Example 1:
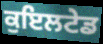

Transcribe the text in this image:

ਕੁਇਲਟੇਡ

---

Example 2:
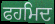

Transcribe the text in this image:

ਫਹਮਿਦ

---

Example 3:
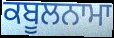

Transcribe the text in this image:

ਕਬੂਲਨਾਮਾ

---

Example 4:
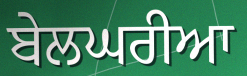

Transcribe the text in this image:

ਬੇਲਘਰੀਆ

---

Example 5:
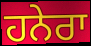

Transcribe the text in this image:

ਹਨੇਰਾ